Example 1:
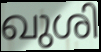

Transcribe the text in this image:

ഖുശി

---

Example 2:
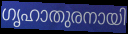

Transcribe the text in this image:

ഗൃഹാതുരനായി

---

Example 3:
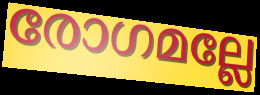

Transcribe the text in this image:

രോഗമല്ലേ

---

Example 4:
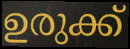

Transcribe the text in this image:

ഉരുക്ക്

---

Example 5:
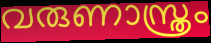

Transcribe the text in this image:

വരുണാസ്ത്രം